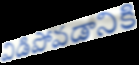
విడిపోవడానికి